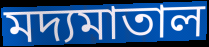
মদ্যমাতাল